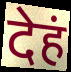
देहं